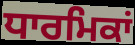
ਧਾਰਮਿਕਾਂ